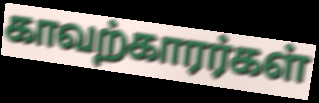
காவற்காரர்கள்